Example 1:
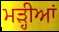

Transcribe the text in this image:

ਮੜ੍ਹੀਆਂ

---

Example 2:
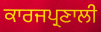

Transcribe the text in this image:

ਕਾਰਜਪ੍ਰਣਾਲੀ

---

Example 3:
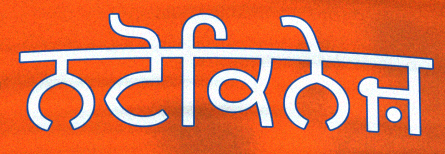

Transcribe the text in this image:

ਨਟੋਕਿਨੇਜ਼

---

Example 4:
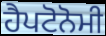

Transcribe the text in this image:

ਹੈਪਟੋਨੋਮੀ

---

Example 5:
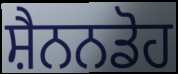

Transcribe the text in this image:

ਸ਼ੈਨਨਡੋਹ